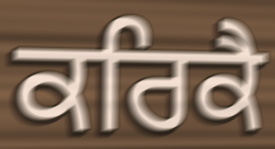
ਕਰਿਕੈ